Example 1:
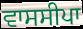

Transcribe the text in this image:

ਵਾਸਸੀਪਾ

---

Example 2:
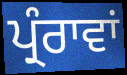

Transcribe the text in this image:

ਪ੍ਰੰਰਾਵਾਂ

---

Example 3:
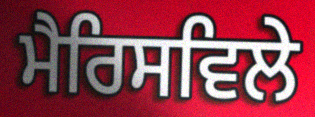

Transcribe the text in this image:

ਮੈਰਿਸਵਿਲੇ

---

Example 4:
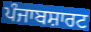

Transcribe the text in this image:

ਪੰਜਾਬਸ਼ਾਰਟ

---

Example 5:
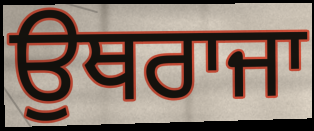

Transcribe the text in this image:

ਉਥਰਾਜਾ